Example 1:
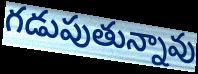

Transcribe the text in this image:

గడుపుతున్నావు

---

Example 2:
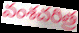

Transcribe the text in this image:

వంశచరిత్ర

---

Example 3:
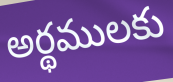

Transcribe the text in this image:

అర్థములకు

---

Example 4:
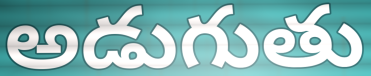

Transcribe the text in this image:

అడుగుతు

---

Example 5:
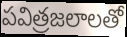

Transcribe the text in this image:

పవిత్రజలాలతో